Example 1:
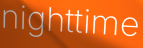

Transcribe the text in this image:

nighttime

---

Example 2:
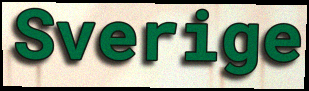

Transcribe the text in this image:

Sverige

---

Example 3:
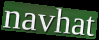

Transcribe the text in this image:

navhat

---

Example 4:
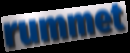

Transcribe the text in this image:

rummet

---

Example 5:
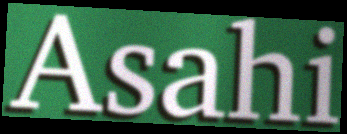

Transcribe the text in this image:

Asahi